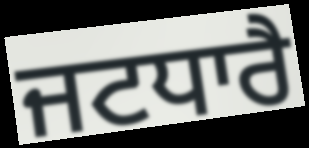
ਜਟਧਾਰੈ